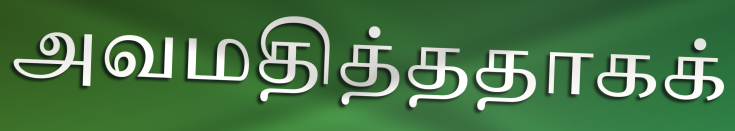
அவமதித்ததாகக்